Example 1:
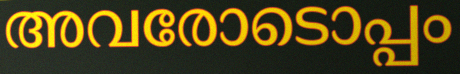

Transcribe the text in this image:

അവരോടൊപ്പം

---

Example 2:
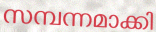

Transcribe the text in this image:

സമ്പന്നമാക്കി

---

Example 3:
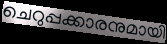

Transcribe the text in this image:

ചെറുപ്പക്കാരനുമായി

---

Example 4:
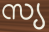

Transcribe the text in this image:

സ്യ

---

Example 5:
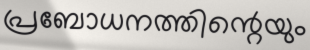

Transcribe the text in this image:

പ്രബോധനത്തിന്റെയും